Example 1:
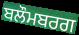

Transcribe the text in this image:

ਬਲੌਮਬਰਗ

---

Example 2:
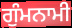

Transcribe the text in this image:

ਗੁੰਮਨਾਮੀ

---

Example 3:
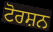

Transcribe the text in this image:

ਟੋਰਸ਼ਨ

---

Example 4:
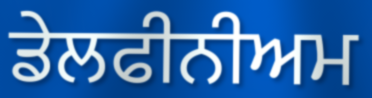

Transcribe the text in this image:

ਡੇਲਫੀਨੀਅਮ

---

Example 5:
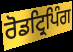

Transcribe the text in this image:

ਰੋਡਟ੍ਰਿਪਿੰਗ